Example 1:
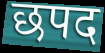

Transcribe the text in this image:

छपद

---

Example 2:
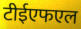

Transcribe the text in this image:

टीईएफएल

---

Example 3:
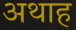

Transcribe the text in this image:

अथाह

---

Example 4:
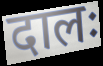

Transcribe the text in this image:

दालः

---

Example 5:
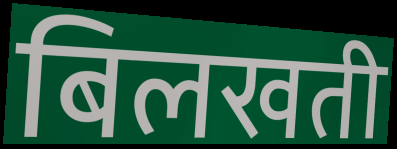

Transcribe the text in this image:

बिलखती